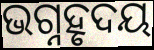
ଭଗ୍ନହୃଦୟ